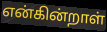
என்கின்றாள்